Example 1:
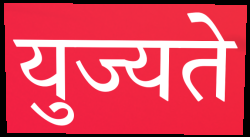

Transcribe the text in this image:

युज्यते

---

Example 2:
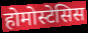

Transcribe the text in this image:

होमोस्टेसिस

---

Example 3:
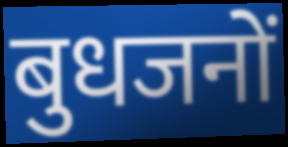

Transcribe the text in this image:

बुधजनों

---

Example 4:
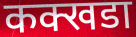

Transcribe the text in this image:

कक्खडा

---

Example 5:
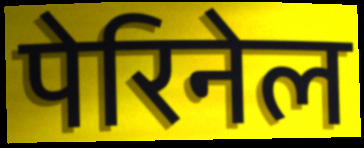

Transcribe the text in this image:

पेरिनेल